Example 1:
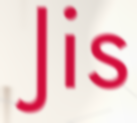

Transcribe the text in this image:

Jis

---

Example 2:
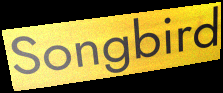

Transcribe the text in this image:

Songbird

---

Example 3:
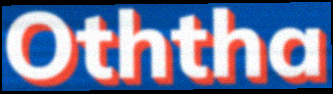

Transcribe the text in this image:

Oththa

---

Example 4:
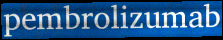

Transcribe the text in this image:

pembrolizumab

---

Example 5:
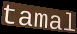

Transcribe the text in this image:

tamal